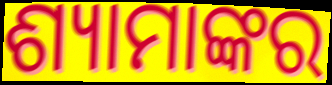
ଶ୍ୟାମାଙ୍କର